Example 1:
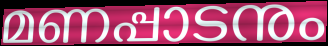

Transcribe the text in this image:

മണപ്പാടനും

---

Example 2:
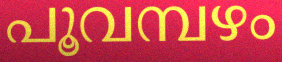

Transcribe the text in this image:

പൂവമ്പഴം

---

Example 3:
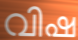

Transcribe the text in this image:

വിഷ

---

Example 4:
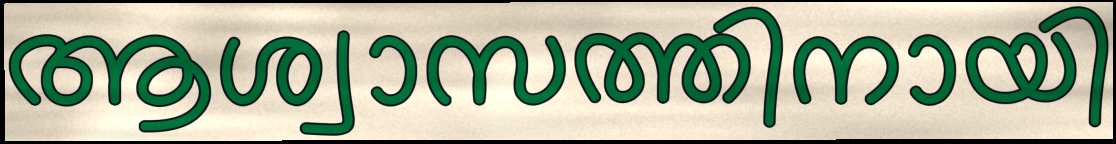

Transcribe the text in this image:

ആശ്വാസത്തിനായി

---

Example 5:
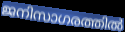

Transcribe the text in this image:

ജനിസാഗരത്തിൽ